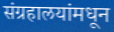
संग्रहालयांमधून